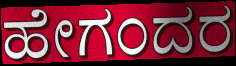
ಹೇಗಂದರ